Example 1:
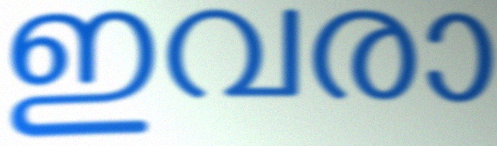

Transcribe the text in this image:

ഇവരാ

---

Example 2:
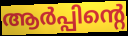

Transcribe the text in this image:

ആർപ്പിന്റെ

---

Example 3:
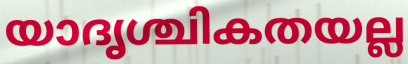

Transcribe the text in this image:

യാദൃശ്ചികതയല്ല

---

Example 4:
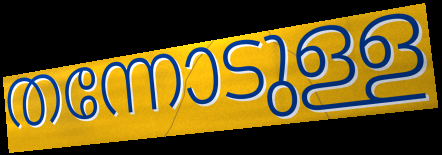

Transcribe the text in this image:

തന്നോടുള്ള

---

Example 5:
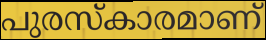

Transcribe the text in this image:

പുരസ്കാരമാണ്